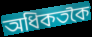
অধিকতকৈ